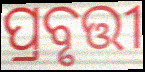
ପ୍ରବୃତ୍ତୀ